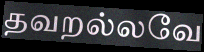
தவறல்லவே